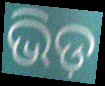
ଭିଡ଼